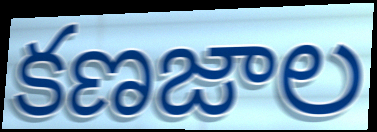
కణజాల